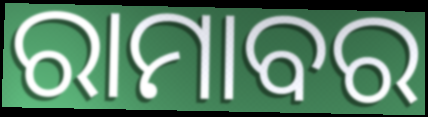
ରାମାବର